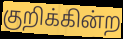
குறிக்கின்ற